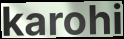
karohi